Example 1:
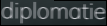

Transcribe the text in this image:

diplomatie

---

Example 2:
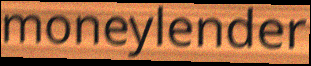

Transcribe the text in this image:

moneylender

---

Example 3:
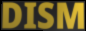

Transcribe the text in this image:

DISM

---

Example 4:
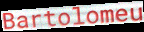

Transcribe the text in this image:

Bartolomeu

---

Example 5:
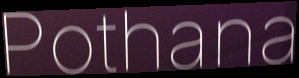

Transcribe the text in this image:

Pothana